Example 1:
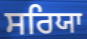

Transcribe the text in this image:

ਸਰਿਯਾ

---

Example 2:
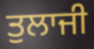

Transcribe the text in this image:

ਤੁਲਾਜੀ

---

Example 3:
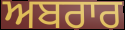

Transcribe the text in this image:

ਅਬਰਾਰ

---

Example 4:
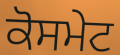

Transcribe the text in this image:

ਕੋਸਮੇਟ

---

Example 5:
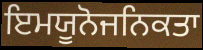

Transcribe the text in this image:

ਇਮਯੂਨੋਜਨਿਕਤਾ